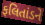
ફલિતાંડને